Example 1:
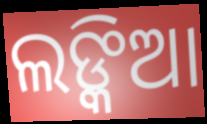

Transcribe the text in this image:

ଲଙ୍କିଆ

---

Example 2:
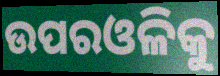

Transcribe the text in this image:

ଉପରଓଳିକୁ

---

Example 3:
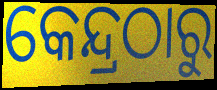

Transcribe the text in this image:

କେନ୍ଦ୍ରଠାରୁ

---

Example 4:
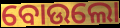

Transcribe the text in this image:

ବୋଉଲୋ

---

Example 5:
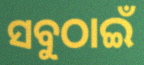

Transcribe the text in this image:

ସବୁଠାଇଁ